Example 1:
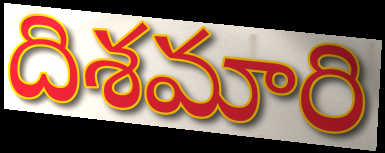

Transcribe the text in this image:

దిశమారి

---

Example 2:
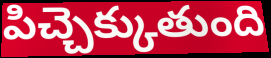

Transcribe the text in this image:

పిచ్చెక్కుతుంది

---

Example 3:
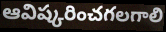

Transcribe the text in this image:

ఆవిష్కరించగలగాలి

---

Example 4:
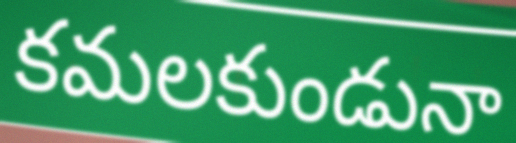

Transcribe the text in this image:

కమలకుండునా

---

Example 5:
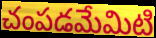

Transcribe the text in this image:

చంపడమేమిటి